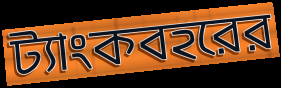
ট্যাংকবহরের